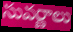
సువర్ణాలు